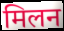
मिलन